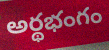
అర్థభంగం